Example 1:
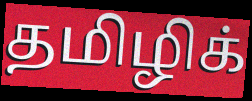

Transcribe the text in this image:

தமிழிக்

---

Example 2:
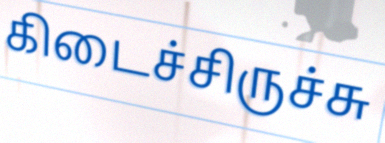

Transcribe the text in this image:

கிடைச்சிருச்சு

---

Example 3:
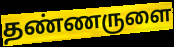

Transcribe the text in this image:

தண்ணருளை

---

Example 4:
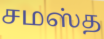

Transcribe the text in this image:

சமஸ்த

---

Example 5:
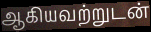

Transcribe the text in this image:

ஆகியவற்றுடன்